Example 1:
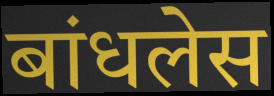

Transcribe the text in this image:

बांधलेस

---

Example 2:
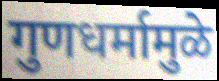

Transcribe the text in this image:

गुणधर्मामुळे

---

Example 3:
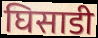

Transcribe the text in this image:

घिसाडी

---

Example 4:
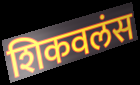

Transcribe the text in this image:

शिकवलंस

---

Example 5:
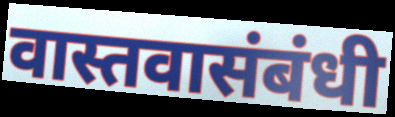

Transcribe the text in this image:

वास्तवासंबंधी